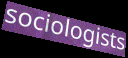
sociologists